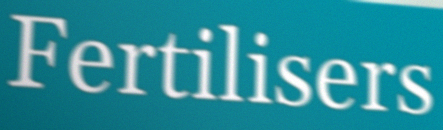
Fertilisers